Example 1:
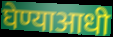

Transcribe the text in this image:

घेण्याआधी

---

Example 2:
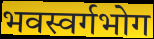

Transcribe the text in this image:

भवस्वर्गभोग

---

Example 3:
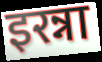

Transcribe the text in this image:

इरन्ना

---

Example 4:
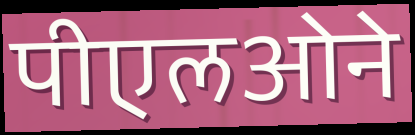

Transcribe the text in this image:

पीएलओने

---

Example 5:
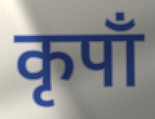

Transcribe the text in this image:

कृपाँ